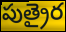
పుత్రైర